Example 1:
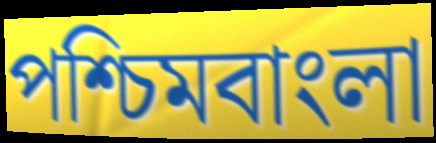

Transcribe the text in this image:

পশ্চিমবাংলা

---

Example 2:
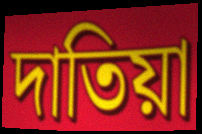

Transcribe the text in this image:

দাতিয়া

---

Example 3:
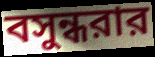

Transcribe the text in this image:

বসুন্ধরার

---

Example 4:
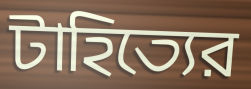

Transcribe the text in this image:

টাহিত্যের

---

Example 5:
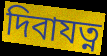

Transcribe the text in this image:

দিবাযত্ন